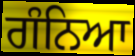
ਗੰਨਿਆ